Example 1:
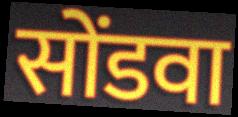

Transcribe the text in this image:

सोंडवा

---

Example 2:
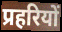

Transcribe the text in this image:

प्रहरियों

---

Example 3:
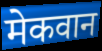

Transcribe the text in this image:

मेकवान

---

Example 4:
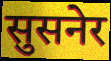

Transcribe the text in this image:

सुसनेर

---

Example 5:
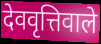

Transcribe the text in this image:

देववृत्तिवाले